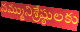
నమ్మునిశ్రేష్ఠులకు